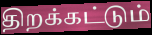
திறக்கட்டும்